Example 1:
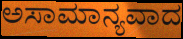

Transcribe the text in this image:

ಅಸಾಮಾನ್ಯವಾದ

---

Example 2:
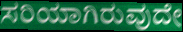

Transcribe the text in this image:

ಸರಿಯಾಗಿರುವುದೇ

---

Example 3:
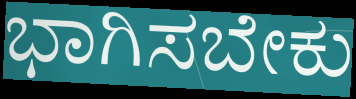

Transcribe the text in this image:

ಭಾಗಿಸಬೇಕು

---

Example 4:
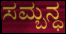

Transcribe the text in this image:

ಸಮ್ಬನ್ಧ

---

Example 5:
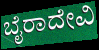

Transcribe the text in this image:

ಬೈರಾದೇವಿ